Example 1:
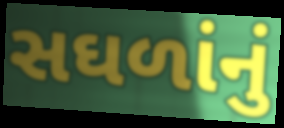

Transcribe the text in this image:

સઘળાંનું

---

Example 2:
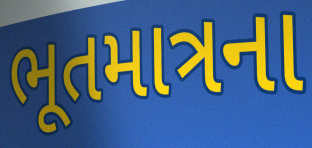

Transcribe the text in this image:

ભૂતમાત્રના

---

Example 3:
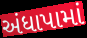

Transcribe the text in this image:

અંધાપામાં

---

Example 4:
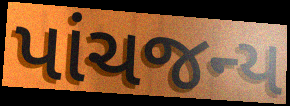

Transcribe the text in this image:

પાંચજન્ય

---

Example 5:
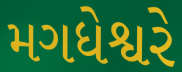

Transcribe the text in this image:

મગધેશ્વરે